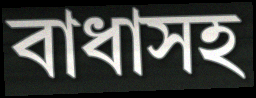
বাধাসহ